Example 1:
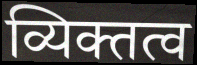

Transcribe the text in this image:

व्यिक्तत्व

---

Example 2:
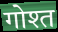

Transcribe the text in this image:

गोश्‍त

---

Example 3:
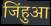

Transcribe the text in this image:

जिंहुआ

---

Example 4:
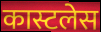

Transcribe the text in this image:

कास्टलेस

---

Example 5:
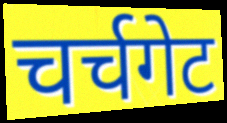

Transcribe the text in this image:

चर्चगेट